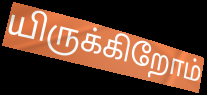
யிருக்கிறோம்